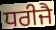
ਧਰੀਜੈ